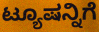
ಟ್ಯೂಷನ್ನಿಗೆ